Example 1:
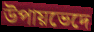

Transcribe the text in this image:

উপায়ভেদে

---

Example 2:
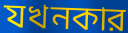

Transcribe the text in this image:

যখনকার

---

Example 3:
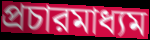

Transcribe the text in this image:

প্রচারমাধ্যম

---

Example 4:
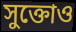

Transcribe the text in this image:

সুক্তোও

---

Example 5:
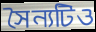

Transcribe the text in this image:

সৈন্যটিও